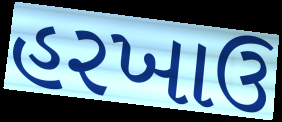
હરખાઉ